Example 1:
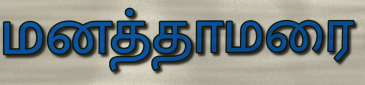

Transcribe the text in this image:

மனத்தாமரை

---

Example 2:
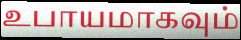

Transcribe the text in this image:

உபாயமாகவும்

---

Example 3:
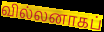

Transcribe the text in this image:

வில்லனாகப்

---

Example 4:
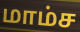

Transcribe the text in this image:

மாம்ச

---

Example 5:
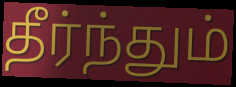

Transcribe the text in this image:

தீர்ந்தும்